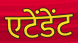
एटेंडेंट